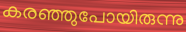
കരഞ്ഞുപോയിരുന്നു